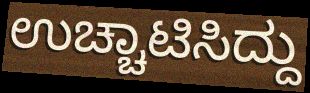
ಉಚ್ಚಾಟಿಸಿದ್ದು